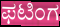
ಫಟಿಂಗ